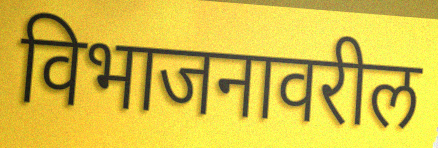
विभाजनावरील